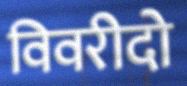
विवरीदो